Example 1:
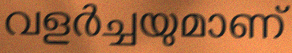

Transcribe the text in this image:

വളർച്ചയുമാണ്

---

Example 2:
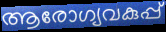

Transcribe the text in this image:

ആരോഗ്യവകുപ്പ്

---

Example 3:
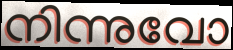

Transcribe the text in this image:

നിന്നുവോ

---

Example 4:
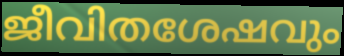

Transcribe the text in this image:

ജീവിതശേഷവും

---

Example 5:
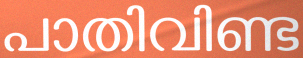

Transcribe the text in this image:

പാതിവിണ്ട